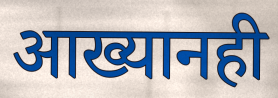
आख्यानही